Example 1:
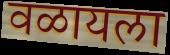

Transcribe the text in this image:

वळायला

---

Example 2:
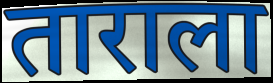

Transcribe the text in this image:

ताराला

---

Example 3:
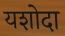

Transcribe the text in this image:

यशोदा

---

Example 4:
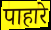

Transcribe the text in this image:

पाहारे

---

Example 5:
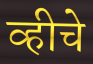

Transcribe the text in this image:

व्हीचे